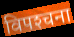
विपश्चना